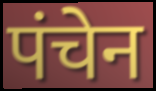
पंचेन